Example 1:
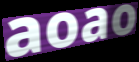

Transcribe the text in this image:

aoao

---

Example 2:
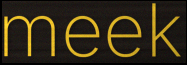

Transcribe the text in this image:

meek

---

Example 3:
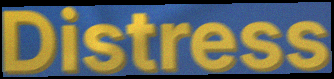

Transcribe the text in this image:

Distress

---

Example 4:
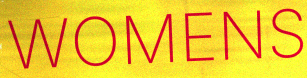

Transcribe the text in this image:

WOMENS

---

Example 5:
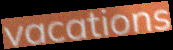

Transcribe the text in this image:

vacations